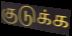
குடுக்க